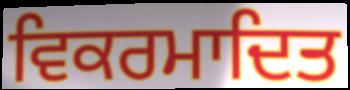
ਵਿਕਰਮਾਦਿਤ